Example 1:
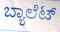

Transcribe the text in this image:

ಬ್ಯಾಲೆಟ್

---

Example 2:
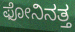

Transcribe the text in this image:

ಫೋನಿನತ್ತ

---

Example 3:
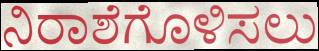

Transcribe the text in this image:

ನಿರಾಶೆಗೊಳಿಸಲು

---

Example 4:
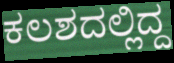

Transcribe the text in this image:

ಕಲಶದಲ್ಲಿದ್ದ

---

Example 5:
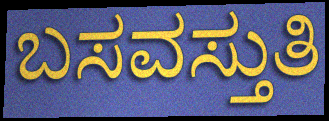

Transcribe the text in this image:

ಬಸವಸ್ತುತಿ